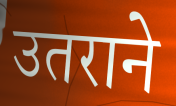
उतराने